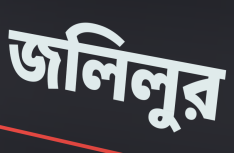
জলিলুর